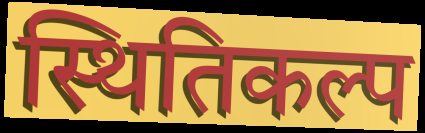
स्थितिकल्प